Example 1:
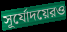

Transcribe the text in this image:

সূর্যোদয়েরও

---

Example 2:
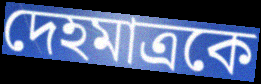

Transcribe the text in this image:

দেহমাত্রকে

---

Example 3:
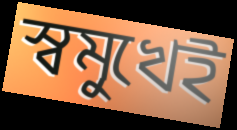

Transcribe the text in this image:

স্বমুখেই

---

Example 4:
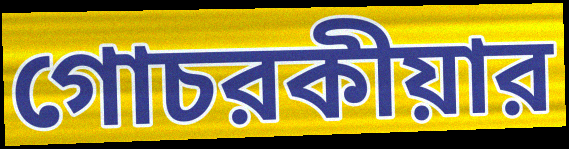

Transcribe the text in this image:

গোচরকীয়ার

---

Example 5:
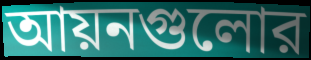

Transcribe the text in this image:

আয়নগুলোর